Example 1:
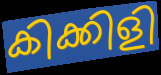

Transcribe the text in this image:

കിക്കിളി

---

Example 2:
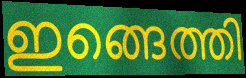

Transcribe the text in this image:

ഇങ്ങെത്തി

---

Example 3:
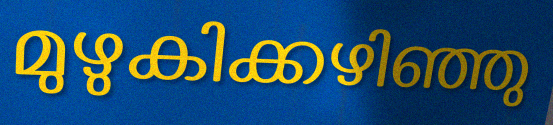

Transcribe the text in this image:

മുഴുകിക്കഴിഞ്ഞു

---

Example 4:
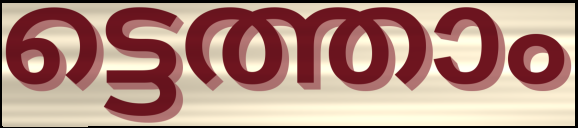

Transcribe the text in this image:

ട്ടെത്താം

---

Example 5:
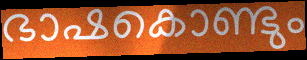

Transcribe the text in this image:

ഭാഷകൊണ്ടും